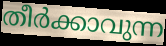
തീർക്കാവുന്ന